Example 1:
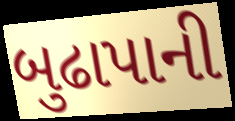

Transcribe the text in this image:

બુઢાપાની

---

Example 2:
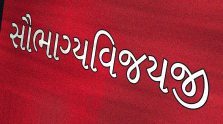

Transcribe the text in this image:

સૌભાગ્યવિજયજી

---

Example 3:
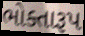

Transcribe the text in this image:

ભોક્તારૂપ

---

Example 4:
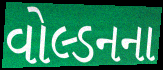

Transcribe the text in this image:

વોલ્ડનના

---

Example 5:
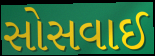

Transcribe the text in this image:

સોસવાઈ